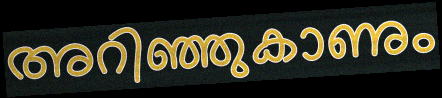
അറിഞ്ഞുകാണും